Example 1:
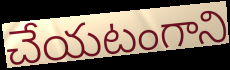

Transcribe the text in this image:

చేయటంగాని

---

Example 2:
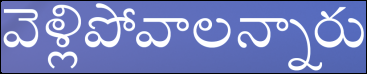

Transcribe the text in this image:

వెళ్లిపోవాలన్నారు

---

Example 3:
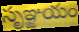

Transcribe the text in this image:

సృఞ్జయం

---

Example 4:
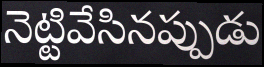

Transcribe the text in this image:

నెట్టివేసినప్పుడు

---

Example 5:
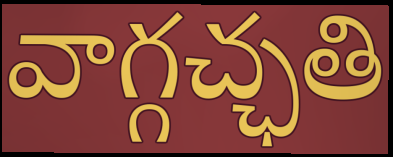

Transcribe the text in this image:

వాగ్గచ్ఛతి